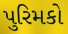
પુરિમકો